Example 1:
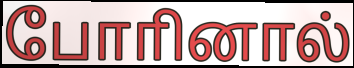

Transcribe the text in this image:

போரினால்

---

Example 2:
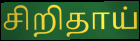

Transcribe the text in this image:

சிறிதாய்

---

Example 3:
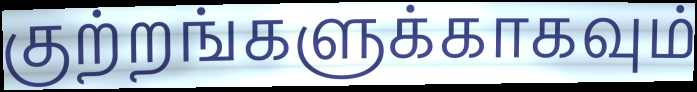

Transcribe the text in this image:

குற்றங்களுக்காகவும்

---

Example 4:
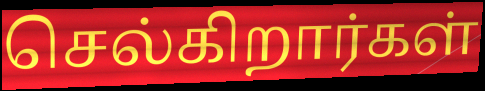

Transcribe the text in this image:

செல்கிறார்கள்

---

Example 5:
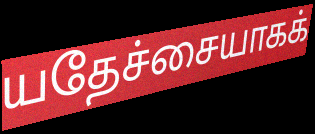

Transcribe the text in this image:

யதேச்சையாகக்